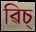
ৱিচ্